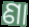
ଣା